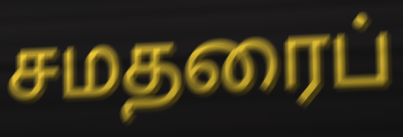
சமதரைப்